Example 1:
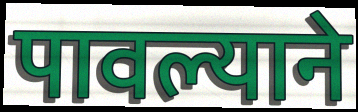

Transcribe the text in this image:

पावल्याने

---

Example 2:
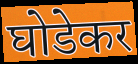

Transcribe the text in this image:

घोडेकर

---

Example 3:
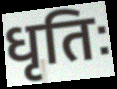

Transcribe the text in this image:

धृतिः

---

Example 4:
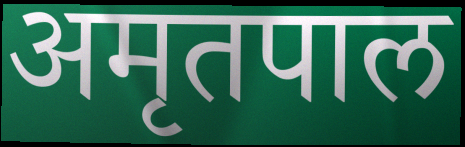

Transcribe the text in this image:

अमृतपाल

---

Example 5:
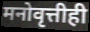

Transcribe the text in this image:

मनोवृत्तीही